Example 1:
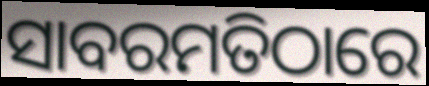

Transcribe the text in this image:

ସାବରମତିଠାରେ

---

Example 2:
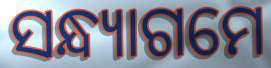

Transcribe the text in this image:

ସନ୍ଧ୍ୟାଗମେ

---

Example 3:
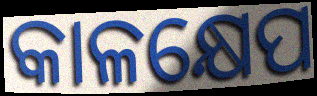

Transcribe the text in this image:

କାଳକ୍ଷେପ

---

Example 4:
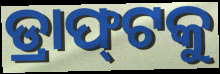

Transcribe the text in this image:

ଡ୍ରାଫ୍‌ଟକୁ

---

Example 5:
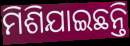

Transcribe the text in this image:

ମିଶିଯାଇଛନ୍ତି